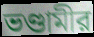
ভণ্ডামীর